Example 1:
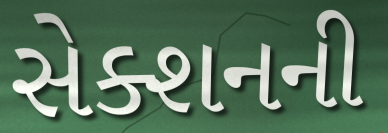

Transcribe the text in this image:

સેક્શનની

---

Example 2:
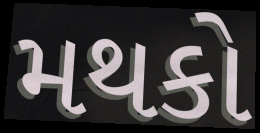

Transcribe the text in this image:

મથકો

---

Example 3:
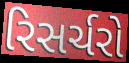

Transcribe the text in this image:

રિસર્ચરો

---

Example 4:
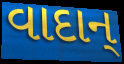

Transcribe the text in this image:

વાદાન્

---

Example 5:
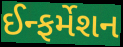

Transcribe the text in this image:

ઈન્ફર્મેશન